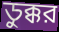
ডুক্কর